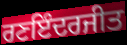
ਰਣਇੰਦਰਜੀਤ